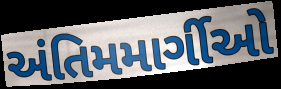
અંતિમમાર્ગીઓ